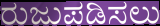
ರುಜುಪಡಿಸಲು